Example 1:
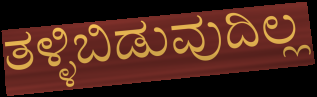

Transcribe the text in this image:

ತಳ್ಳಿಬಿಡುವುದಿಲ್ಲ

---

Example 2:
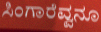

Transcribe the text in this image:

ಸಿಂಗಾರೆವ್ವನೂ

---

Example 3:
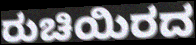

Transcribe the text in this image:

ರುಚಿಯಿರದ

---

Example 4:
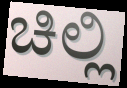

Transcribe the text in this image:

ಚಿಲ್ಲಿ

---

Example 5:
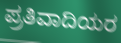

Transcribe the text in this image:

ಪ್ರತಿವಾದಿಯರ